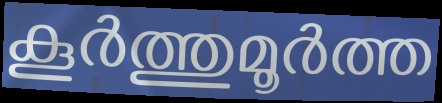
കൂർത്തുമൂർത്ത